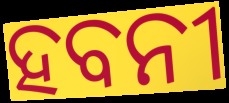
ହବନୀ